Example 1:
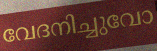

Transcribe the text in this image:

വേദനിച്ചുവോ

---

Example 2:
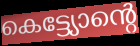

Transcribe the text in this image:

കെട്ട്യോന്റെ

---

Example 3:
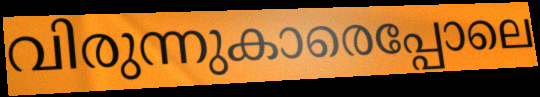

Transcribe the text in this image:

വിരുന്നുകാരെപ്പോലെ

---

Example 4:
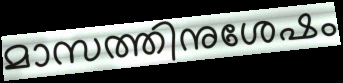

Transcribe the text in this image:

മാസത്തിനുശേഷം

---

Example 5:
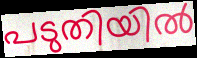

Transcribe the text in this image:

പടുതിയിൽ